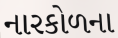
નારકોળના